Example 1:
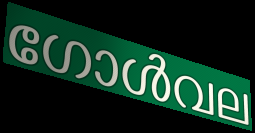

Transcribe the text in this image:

ഗോൾവല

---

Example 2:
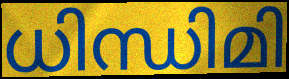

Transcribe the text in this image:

ധിന്ധിമി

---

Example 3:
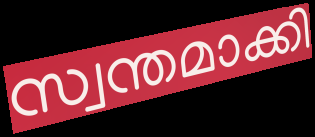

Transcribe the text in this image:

സ്വന്തമാക്കി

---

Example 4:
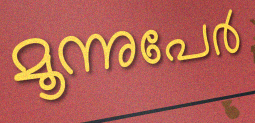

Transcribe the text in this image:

മൂന്നുപേർ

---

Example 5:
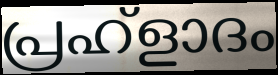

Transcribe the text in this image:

പ്രഹ്ളാദം